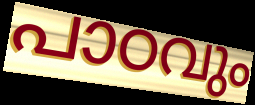
പാഠവും